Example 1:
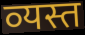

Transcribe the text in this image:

व्‍यस्‍त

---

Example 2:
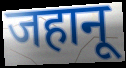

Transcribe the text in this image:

जहानू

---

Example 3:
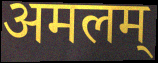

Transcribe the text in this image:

अमलम्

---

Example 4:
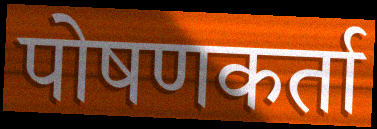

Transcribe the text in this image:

पोषणकर्ता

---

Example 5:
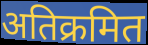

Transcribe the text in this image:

अतिक्रमित